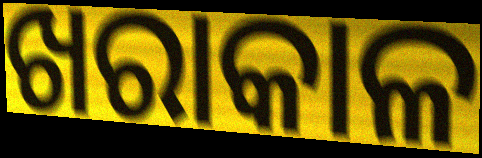
ଖରାକାଳ